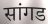
सांगड